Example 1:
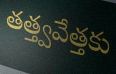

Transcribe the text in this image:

తత్త్వవేత్తకు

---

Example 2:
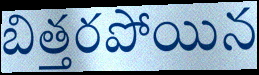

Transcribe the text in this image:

బిత్తరపోయిన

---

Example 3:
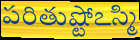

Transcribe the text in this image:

పరితుష్టోఽస్మి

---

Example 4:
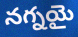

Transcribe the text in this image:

నగ్నయై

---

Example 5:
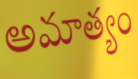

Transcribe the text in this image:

అమాత్యం